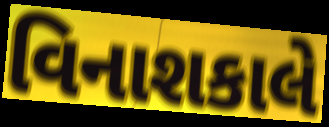
વિનાશકાલે